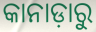
କାନାଡ଼ାରୁ